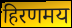
हिरणमय